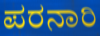
ಪರನಾರಿ